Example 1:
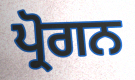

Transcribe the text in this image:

ਪ੍ਰੋਗਨ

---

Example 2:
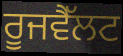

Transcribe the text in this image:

ਰੂਜਵੈੱਲਟ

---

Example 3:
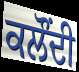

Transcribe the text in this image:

ਕਲੌਂਦੀ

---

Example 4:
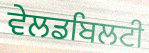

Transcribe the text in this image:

ਵੇਲਡਬਿਲਟੀ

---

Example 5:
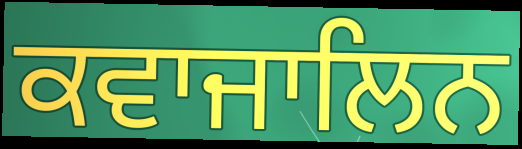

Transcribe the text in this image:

ਕਵਾਜਾਲਿਨ